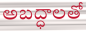
అబద్ధాలతో